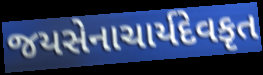
જયસેનાચાર્યદેવકૃત